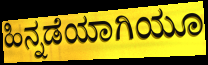
ಹಿನ್ನಡೆಯಾಗಿಯೂ